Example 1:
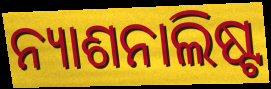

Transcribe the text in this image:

ନ୍ୟାଶନାଲିଷ୍ଟ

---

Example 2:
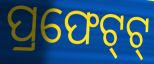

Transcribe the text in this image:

ପ୍ରଫେଟ୍‌ଟ୍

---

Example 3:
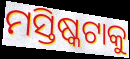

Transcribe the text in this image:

ମସ୍ତିଷ୍କଟାକୁ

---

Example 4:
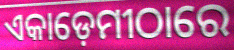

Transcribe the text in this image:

ଏକାଡ଼େମୀଠାରେ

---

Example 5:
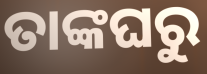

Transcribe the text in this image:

ତାଙ୍କଘରୁ